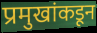
प्रमुखांकडून